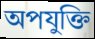
অপযুক্তি